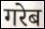
गरेब